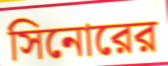
সিনোরের